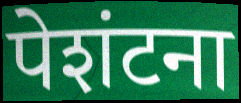
पेशंटना